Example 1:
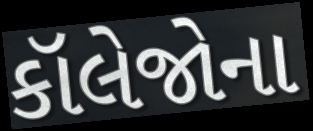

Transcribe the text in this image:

કૉલેજોના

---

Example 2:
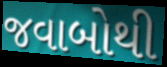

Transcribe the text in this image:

જવાબોથી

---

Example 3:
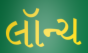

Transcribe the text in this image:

લૉન્ચ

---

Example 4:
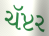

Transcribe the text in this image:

ચૅપ્ટર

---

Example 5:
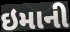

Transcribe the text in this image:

ઇમાની